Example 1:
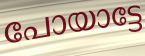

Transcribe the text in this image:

പോയാട്ടേ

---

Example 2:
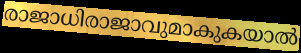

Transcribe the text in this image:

രാജാധിരാജാവുമാകുകയാൽ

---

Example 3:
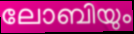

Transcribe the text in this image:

ലോബിയും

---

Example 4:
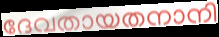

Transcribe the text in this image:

ദേവതായതനാനി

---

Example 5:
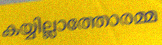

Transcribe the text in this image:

കയ്യില്ലാത്തോരമ്മ